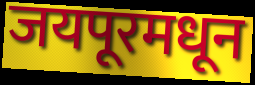
जयपूरमधून